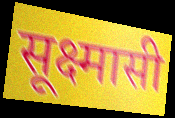
सूक्ष्मासी